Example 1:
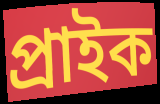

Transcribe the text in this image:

প্রাইক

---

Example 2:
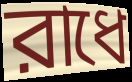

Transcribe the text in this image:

রাধে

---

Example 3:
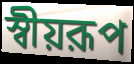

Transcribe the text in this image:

স্বীয়রূপ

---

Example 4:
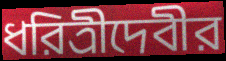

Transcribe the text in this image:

ধরিত্রীদেবীর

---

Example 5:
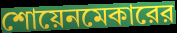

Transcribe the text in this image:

শোয়েনমেকারের